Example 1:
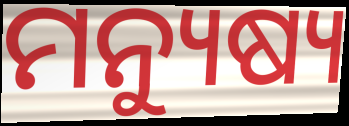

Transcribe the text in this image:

ମନ୍ୟୁଷ୍ୟ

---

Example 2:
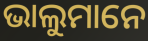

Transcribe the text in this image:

ଭାଲୁମାନେ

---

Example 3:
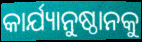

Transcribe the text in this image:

କାର୍ଯ୍ୟାନୁଷ୍ଠାନକୁ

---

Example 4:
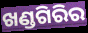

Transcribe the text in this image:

ଖଣ୍ଡଗିରିର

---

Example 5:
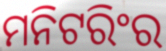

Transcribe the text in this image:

ମନିଟରିଂର